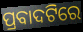
ପ୍ରବାଦଟିରେ